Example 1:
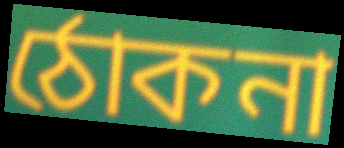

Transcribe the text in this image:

ঠোকনা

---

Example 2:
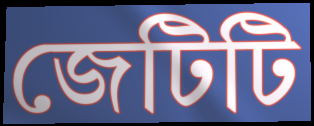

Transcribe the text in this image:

জেটিটি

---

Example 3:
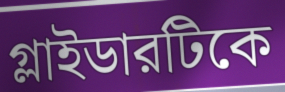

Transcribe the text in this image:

গ্লাইডারটিকে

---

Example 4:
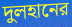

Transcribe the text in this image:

দুলহানের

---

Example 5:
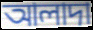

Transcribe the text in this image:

আলাদা